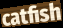
catfish